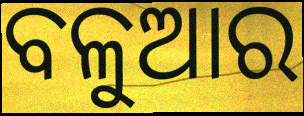
ବଳୁଆର